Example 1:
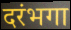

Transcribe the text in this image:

दरंभगा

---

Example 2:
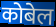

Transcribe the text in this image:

कोबेल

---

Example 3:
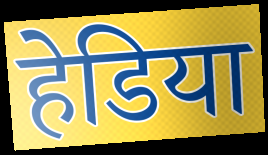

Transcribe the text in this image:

हेडिया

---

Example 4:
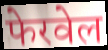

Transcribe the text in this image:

फेरवेल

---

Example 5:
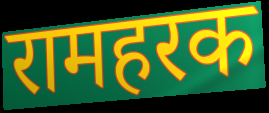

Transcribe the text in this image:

रामहरक